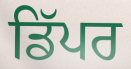
ਡਿੱਪਰ